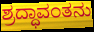
ಶ್ರದ್ಧಾವಂತನು